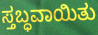
ಸ್ತಬ್ಧವಾಯಿತು